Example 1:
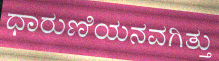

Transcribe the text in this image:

ಧಾರುಣಿಯನವಗಿತ್ತು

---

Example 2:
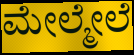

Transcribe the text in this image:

ಮೇಲ್ಮೇಲೆ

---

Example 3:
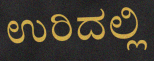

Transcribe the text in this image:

ಉರಿದಲ್ಲಿ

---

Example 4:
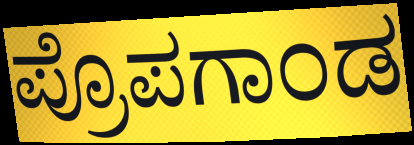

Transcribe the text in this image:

ಪ್ರೊಪಗಾಂಡ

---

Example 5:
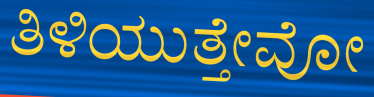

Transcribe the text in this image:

ತಿಳಿಯುತ್ತೇವೋ